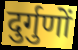
दुर्गुणों